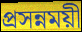
প্রসন্নময়ী